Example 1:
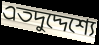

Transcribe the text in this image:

এতদুদ্দেশ্যে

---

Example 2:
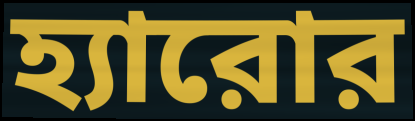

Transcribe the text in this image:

হ্যারোর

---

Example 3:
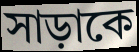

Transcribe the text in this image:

সাড়াকে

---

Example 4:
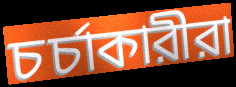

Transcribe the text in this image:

চর্চাকারীরা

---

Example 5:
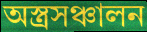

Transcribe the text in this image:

অস্ত্রসঞ্চালন